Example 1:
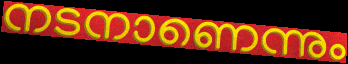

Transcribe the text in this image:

നടനാണെന്നും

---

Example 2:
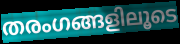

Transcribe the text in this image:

തരംഗങ്ങളിലൂടെ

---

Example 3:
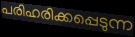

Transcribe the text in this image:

പരിഹരിക്കപ്പെടുന്ന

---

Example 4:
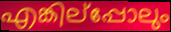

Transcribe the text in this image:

എങ്കില്പ്പോലും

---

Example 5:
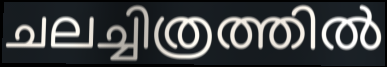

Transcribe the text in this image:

ചലച്ചിത്രത്തിൽ